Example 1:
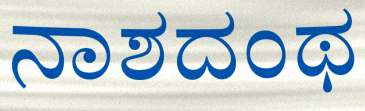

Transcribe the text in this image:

ನಾಶದಂಥ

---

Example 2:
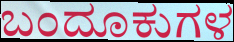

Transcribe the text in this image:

ಬಂದೂಕುಗಳ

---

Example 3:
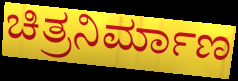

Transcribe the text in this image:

ಚಿತ್ರನಿರ್ಮಾಣ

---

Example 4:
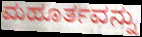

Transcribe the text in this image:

ಮಹೂರ್ತವನ್ನು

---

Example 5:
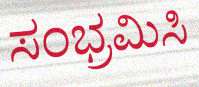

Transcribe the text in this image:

ಸಂಭ್ರಮಿಸಿ